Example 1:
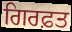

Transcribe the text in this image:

ਗਿਰਫ਼ਤ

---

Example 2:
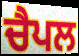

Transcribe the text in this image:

ਚੈਪਲ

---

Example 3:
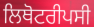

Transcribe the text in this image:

ਲਿਥੋਟਰੀਪਸੀ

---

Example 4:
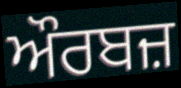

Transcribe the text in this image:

ਔਰਬਜ਼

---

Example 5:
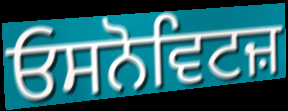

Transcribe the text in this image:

ਓਸਨੋਵਿਟਜ਼